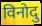
विनोदु